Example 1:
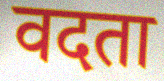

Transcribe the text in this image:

वदता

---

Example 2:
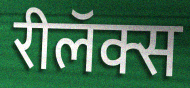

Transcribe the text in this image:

रीलॅक्स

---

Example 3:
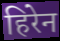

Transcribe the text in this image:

हिरेन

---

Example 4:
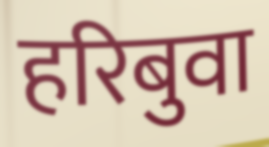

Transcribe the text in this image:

हरिबुवा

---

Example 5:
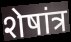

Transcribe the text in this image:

शेषांत्र